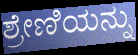
ಶ್ರೇಣಿಯನ್ನು